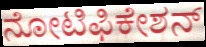
ನೋಟಿಫಿಕೇಶನ್